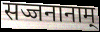
सज्जनानाम्